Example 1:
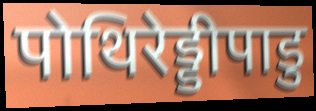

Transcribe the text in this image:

पोथिरेड्डीपाडु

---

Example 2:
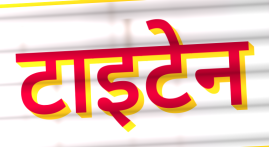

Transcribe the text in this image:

टाइटेन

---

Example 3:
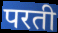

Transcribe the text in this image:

परती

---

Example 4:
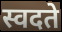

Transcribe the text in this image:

स्वदते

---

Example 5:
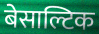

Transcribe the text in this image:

बेसाल्टिक